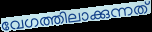
വേഗത്തിലാക്കുന്നത്